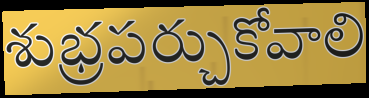
శుభ్రపర్చుకోవాలి